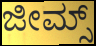
ಜೀಮ್ಸ್